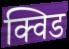
क्विड